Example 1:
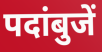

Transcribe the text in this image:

पदांबुजें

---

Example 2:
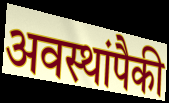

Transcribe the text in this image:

अवस्थांपैकी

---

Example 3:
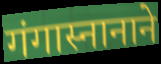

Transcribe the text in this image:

गंगास्नानाने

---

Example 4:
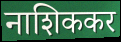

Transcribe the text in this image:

नाशिककर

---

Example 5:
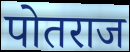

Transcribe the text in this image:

पोतराज